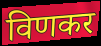
विणकर